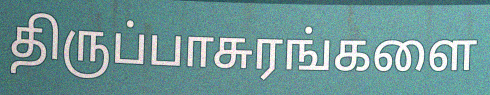
திருப்பாசுரங்களை